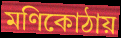
মণিকোঠায়